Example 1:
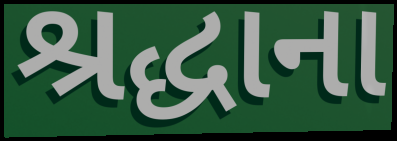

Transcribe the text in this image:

શ્રદ્ધાના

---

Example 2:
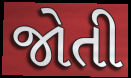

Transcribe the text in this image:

જોતી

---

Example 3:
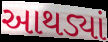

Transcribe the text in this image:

આથડ્યાં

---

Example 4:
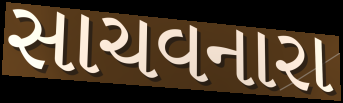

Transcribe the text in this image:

સાચવનારા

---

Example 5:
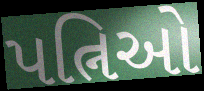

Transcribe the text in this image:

પત્નિઓ